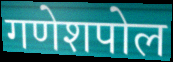
गणेशपोल